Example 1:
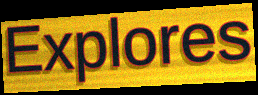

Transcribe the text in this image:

Explores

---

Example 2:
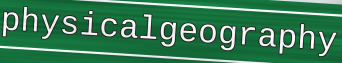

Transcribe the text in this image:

physicalgeography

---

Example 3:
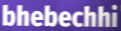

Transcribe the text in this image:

bhebechhi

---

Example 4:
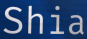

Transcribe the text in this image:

Shia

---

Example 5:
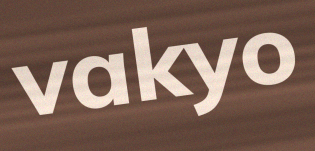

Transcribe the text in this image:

vakyo